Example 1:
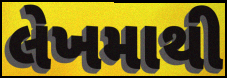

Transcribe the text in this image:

લેખમાથી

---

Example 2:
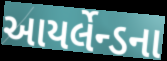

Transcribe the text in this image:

આયર્લેન્ડના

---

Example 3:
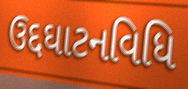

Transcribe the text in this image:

ઉદ્દઘાટનવિધિ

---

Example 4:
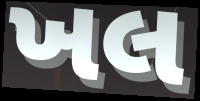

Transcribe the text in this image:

ખલ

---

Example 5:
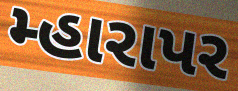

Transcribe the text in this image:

મ્હારાપર